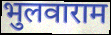
भुलवाराम